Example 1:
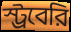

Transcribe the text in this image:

স্ট্রবেরি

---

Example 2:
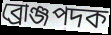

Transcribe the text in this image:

ব্রোঞ্জপদক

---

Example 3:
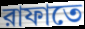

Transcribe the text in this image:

রাফাতে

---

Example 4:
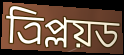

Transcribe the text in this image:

ত্রিপ্লয়ড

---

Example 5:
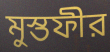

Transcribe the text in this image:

মুস্তফীর